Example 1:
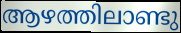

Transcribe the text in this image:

ആഴത്തിലാണ്ടു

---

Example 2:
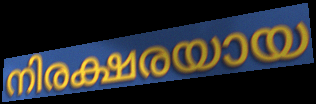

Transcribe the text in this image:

നിരക്ഷരയായ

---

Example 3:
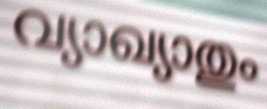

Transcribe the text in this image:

വ്യാഖ്യാതും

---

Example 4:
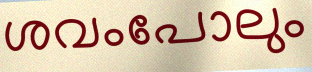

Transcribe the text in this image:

ശവംപോലും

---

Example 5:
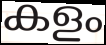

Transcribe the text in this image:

കളം